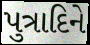
પુત્રાદિને